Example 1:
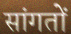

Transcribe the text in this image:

सांगतों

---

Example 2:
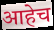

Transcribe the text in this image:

आहेच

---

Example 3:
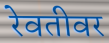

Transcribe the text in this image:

रेवतीवर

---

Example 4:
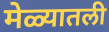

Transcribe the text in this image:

मेळ्यातली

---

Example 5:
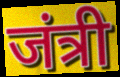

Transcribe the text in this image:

जंत्री